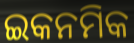
ଇକନମିକ